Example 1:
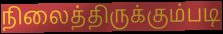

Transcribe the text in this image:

நிலைத்திருக்கும்படி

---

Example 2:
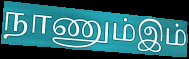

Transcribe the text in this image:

நாணும்இம்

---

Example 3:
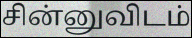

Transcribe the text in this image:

சின்னுவிடம்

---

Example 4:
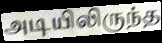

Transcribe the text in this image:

அடியிலிருந்த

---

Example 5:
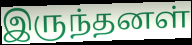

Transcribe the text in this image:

இருந்தனள்